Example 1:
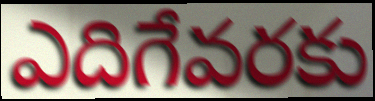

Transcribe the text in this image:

ఎదిగేవరకు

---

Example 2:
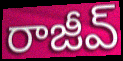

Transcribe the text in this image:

రాజీవ్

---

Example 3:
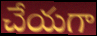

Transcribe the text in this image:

చేయగా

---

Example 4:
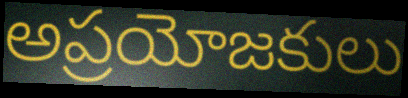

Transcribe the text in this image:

అప్రయోజకులు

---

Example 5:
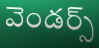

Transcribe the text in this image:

వెండర్స్